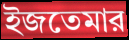
ইজতেমার